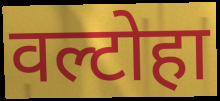
वल्टोहा